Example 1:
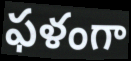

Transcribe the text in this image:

ఫళంగా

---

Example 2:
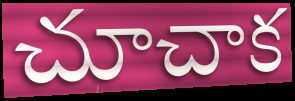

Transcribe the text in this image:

చూచాక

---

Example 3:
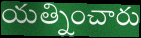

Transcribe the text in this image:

యత్నించారు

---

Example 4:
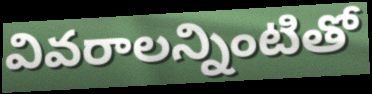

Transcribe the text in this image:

వివరాలన్నింటితో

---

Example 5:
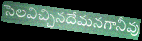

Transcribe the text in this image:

సెలవిచ్చినదేమనగానీవు